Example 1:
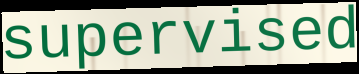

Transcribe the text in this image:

supervised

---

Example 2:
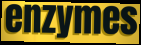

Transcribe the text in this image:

enzymes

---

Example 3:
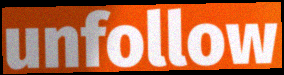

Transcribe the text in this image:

unfollow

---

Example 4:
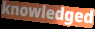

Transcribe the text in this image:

knowledged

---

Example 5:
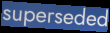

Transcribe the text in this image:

superseded